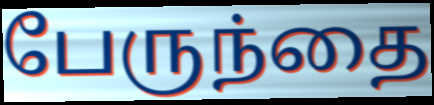
பேருந்தை